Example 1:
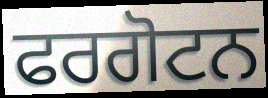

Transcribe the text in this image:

ਫਰਗੋਟਨ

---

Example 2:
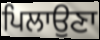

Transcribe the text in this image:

ਪਿਲਾਉਣਾ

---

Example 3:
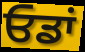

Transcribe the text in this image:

ਓਡਾਂ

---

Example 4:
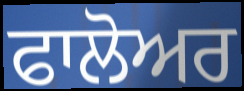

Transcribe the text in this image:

ਫਾਲੋਅਰ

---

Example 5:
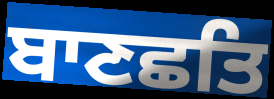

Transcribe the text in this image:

ਬਾਣਛਤਿ